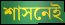
শাসনেই